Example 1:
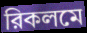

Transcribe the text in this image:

রিকলমে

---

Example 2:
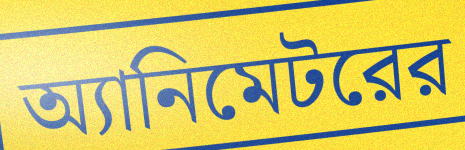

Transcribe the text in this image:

অ্যানিমেটরের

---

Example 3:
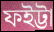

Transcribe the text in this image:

ফইট্টা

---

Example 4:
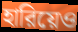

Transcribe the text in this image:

হারিয়েও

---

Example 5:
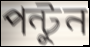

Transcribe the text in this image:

পন্টুন